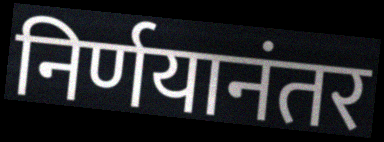
निर्णयानंतर